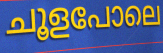
ചൂളപോലെ